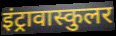
इंट्रावास्कुलर